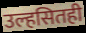
उल्हसितही